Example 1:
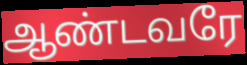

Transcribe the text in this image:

ஆண்டவரே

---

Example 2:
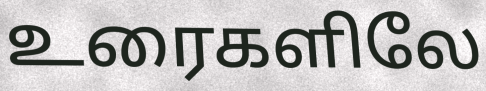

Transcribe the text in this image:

உரைகளிலே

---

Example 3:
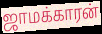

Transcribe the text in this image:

ஜாமக்காரன்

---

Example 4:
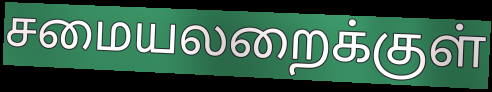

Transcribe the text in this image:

சமையலறைக்குள்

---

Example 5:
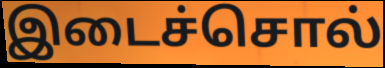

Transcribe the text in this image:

இடைச்சொல்